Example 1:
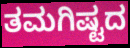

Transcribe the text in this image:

ತಮಗಿಷ್ಟದ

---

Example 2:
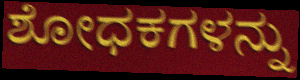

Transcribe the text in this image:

ಶೋಧಕಗಳನ್ನು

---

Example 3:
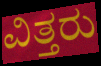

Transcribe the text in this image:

ವಿತ್ತರು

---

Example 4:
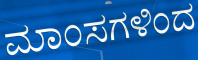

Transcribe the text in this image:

ಮಾಂಸಗಳಿಂದ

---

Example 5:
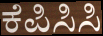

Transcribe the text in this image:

ಕೆಪಿಸಿಸಿ